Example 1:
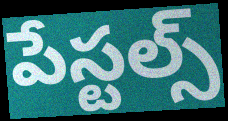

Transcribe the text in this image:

పేస్టల్స్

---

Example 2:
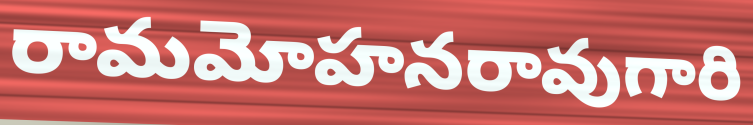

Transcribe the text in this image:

రామమోహనరావుగారి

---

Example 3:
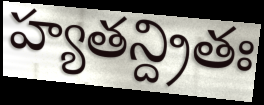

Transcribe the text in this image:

హ్యతన్ద్రితః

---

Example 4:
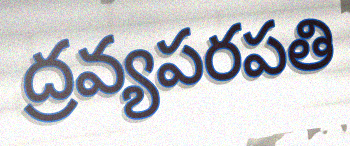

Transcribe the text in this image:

ద్రవ్యపరపతి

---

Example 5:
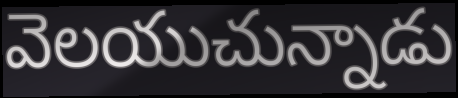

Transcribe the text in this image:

వెలయుచున్నాడు